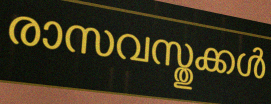
രാസവസ്തുക്കൾ